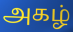
அகழ்